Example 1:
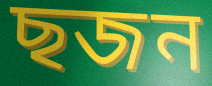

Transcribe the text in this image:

ছজন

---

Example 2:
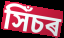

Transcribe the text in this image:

সিঁচৰ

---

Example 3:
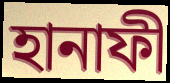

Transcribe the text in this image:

হানাফী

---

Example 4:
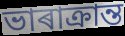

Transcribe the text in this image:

ভাৰাক্ৰান্ত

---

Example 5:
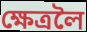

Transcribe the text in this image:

ক্ষেত্ৰলৈ